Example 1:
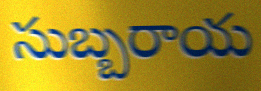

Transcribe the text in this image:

సుబ్బరాయ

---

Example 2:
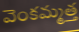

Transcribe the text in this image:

వెంకమ్మత్త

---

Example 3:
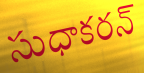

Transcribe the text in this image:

సుధాకరన్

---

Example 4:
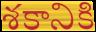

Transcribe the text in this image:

శకానికి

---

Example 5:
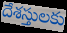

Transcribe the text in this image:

దేశస్తులకు